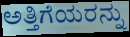
ಅತ್ತಿಗೆಯರನ್ನು